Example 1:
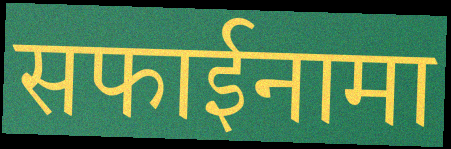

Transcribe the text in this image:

सफाईनामा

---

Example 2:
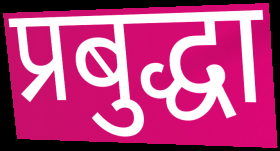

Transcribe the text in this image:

प्रबुद्धा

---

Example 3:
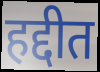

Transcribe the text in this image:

हद्दीत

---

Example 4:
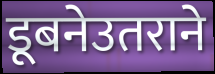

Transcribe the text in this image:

डूबनेउतराने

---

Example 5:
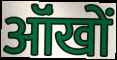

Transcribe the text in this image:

ऑंखों